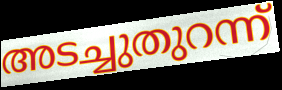
അടച്ചുതുറന്ന്